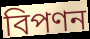
বিপণন